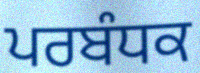
ਪਰਬੰਧਕ